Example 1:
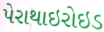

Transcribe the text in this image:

પેરાથાઇરોઇડ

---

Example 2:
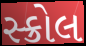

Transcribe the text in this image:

સ્ક્રોલ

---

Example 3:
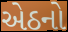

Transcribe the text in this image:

એઠનો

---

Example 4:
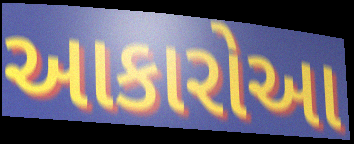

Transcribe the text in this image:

આકારોઆ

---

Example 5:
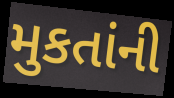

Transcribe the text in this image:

મુકતાંની